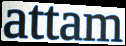
attam